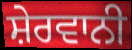
ਸ਼ੇਰਵਾਨੀ